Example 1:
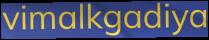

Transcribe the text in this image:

vimalkgadiya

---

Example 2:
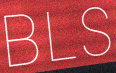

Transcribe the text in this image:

BLS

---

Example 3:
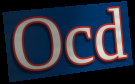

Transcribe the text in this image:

Ocd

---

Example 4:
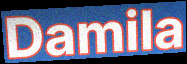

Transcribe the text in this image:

Damila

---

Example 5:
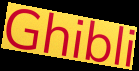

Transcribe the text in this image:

Ghibli